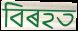
বিৰহত